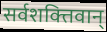
सर्वशक्तिवान्